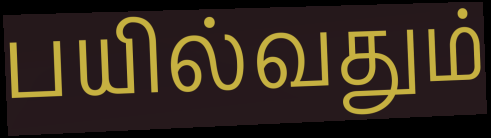
பயில்வதும்